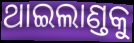
ଥାଇଲାଣ୍ଡକୁ